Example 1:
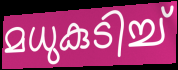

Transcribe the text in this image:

മധുകുടിച്ച്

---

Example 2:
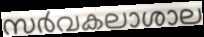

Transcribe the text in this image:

സർവകലാശാല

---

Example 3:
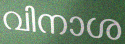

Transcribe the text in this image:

വിനാശ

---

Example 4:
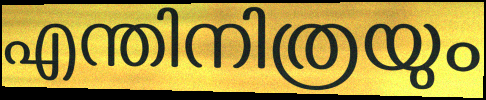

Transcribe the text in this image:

എന്തിനിത്രയും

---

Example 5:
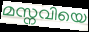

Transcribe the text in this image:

മസ്നവിയെ